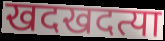
खदखदत्या